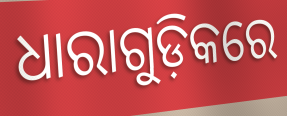
ଧାରାଗୁଡ଼ିକରେ